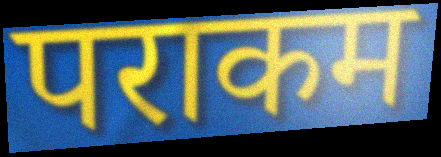
पराकम